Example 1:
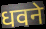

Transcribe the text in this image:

धवने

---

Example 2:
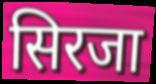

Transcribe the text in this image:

सिरजा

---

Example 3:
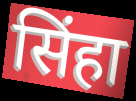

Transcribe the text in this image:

सिंहा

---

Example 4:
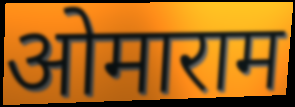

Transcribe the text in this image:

ओमाराम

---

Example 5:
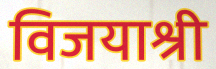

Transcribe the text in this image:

विजयाश्री